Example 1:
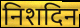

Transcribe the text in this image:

निशदिन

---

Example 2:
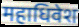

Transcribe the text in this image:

महाधिवेश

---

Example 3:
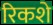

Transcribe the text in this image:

रिकशे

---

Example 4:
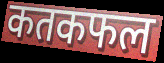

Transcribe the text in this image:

कतकफल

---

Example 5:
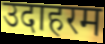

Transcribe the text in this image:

उदाहरम